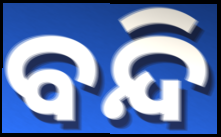
ବନ୍ଦି